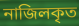
নাজিলকৃত